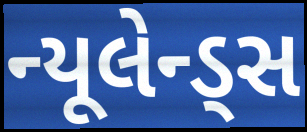
ન્યૂલેન્ડ્સ